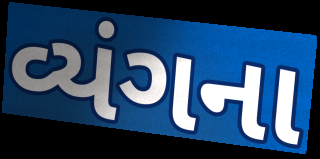
વ્યંગના